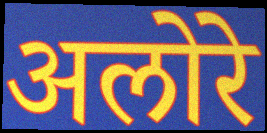
अलोरे